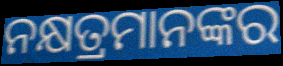
ନକ୍ଷତ୍ରମାନଙ୍କର